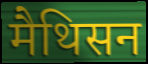
मैथिसन